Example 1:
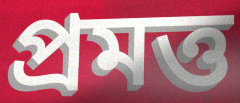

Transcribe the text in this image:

প্রমত্ত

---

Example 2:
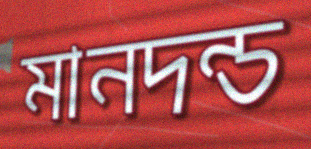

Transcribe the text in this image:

মানদন্ড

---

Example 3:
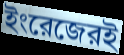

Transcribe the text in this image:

ইংরেজেরই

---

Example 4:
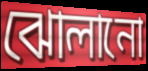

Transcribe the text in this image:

ঝোলানো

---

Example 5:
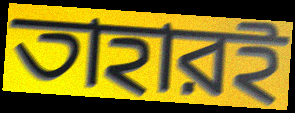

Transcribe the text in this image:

তাহারই